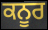
ਕਨੂਰ